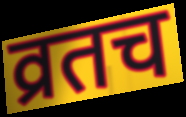
व्रतच